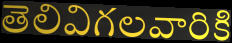
తెలివిగలవారికి